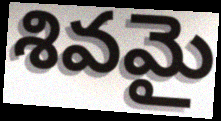
శివమై